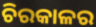
ଚିରକାଳର